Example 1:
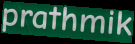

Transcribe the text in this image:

prathmik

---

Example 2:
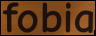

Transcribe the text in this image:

fobia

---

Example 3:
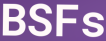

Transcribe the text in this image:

BSFs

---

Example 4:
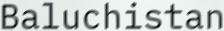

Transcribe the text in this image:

Baluchistan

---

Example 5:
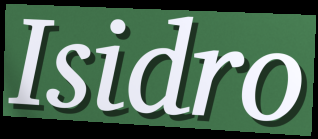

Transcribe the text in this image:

Isidro